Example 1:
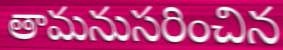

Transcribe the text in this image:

తామనుసరించిన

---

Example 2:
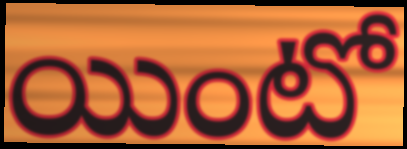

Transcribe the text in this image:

యింటో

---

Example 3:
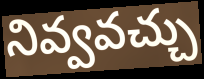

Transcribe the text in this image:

నివ్వవచ్చు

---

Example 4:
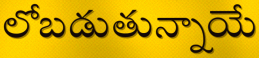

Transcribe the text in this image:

లోబడుతున్నాయే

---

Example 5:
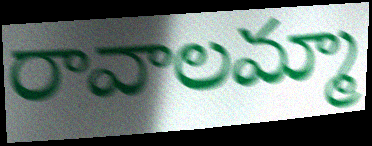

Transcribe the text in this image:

రావాలమ్మా